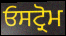
ਓਸਟ੍ਰੋਮ